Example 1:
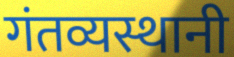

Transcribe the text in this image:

गंतव्यस्थानी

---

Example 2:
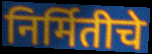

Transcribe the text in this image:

निर्मितीचे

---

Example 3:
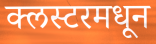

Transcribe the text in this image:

क्लस्टरमधून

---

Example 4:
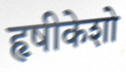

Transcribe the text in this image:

हृषीकेशो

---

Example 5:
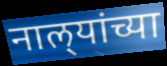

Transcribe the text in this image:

नाल्यांच्या